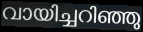
വായിച്ചറിഞ്ഞു